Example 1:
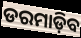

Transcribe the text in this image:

ଡରମାଡ଼ିବ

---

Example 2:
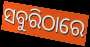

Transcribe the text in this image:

ସବୁରିଠାରେ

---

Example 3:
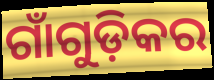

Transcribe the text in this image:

ଗାଁଗୁଡ଼ିକର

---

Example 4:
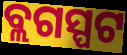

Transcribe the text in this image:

ବ୍ଲଗସ୍ପଟ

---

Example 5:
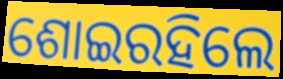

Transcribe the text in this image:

ଶୋଇରହିଲେ